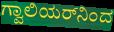
ಗ್ವಾಲಿಯರ್‌ನಿಂದ